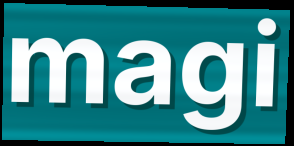
magi